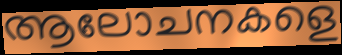
ആലോചനകളെ